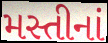
મસ્તીનાં